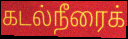
கடல்நீரைக்